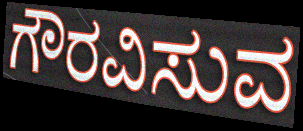
ಗೌರವಿಸುವ